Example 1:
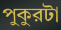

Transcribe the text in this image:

পুকুরটা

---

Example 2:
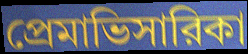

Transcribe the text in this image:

প্রেমাভিসারিকা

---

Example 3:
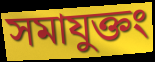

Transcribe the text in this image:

সমাযুক্তং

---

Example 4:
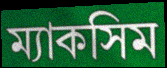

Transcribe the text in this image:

ম্যাকসিম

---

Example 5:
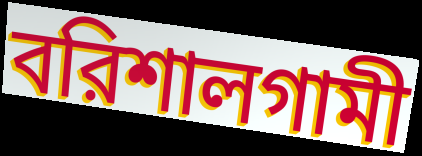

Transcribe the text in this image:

বরিশালগামী